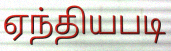
ஏந்தியபடி